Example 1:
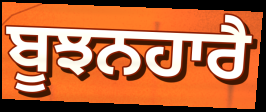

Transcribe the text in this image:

ਬੂਝਨਹਾਰੈ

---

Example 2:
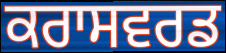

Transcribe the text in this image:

ਕਰਾਸਵਰਡ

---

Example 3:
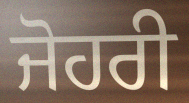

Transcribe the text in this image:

ਜੋਹਰੀ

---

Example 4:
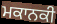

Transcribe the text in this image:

ਮਕਾਨਕੀ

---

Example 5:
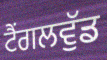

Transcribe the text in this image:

ਟੈਂਗਲਵੁੱਡ